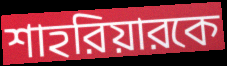
শাহরিয়ারকে